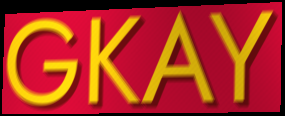
GKAY